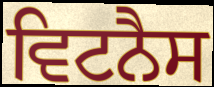
ਵਿਟਨੈਸ